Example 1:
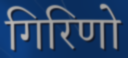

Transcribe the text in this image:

गिरिणो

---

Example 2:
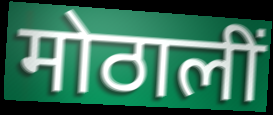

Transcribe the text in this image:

मोठालीं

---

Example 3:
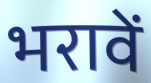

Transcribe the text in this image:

भरावें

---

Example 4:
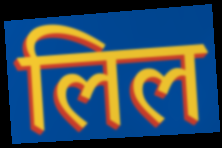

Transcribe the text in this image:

लिल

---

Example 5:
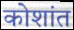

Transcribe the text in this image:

कोशांत